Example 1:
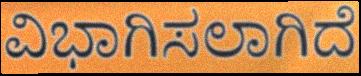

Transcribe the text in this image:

ವಿಭಾಗಿಸಲಾಗಿದೆ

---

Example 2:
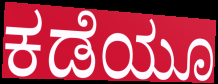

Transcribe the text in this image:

ಕಡೆಯೂ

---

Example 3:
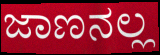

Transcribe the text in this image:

ಜಾಣನಲ್ಲ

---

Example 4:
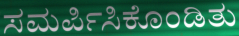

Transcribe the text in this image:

ಸಮರ್ಪಿಸಿಕೊಂಡಿತು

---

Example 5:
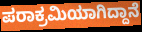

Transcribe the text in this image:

ಪರಾಕ್ರಮಿಯಾಗಿದ್ದಾನೆ